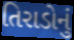
તિરાડોનું